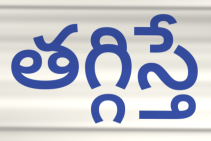
తగ్గిస్తే